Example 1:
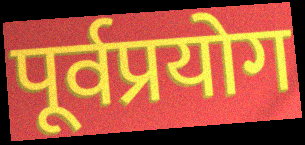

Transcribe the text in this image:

पूर्वप्रयोग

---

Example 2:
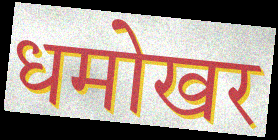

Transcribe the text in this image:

धमोखर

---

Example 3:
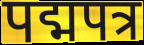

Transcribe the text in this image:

पद्मपत्र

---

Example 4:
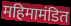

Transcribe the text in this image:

महिमामंडित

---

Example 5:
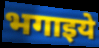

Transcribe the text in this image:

भगाइये